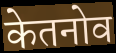
केतनोव